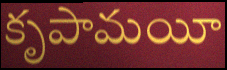
కృపామయీ